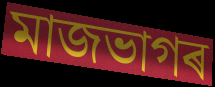
মাজভাগৰ